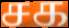
சக